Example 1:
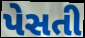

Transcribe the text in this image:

પેસતી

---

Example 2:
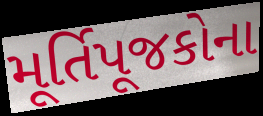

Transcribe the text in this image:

મૂર્તિપૂજકોના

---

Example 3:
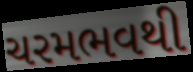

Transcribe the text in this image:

ચરમભવથી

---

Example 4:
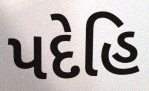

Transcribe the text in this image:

પદેહિ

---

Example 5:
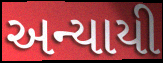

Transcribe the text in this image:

અન્યાયી